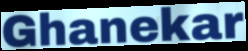
Ghanekar